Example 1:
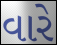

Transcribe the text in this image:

વારે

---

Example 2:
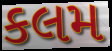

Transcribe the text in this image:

કલમ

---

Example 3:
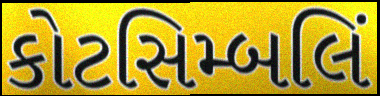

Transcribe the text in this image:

કોટસિમ્બલિં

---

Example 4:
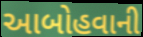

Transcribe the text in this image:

આબોહવાની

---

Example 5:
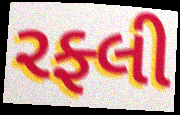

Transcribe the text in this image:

રફ્લી